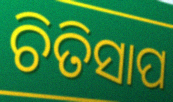
ଚିତିସାପ